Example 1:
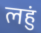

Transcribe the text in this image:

लहुं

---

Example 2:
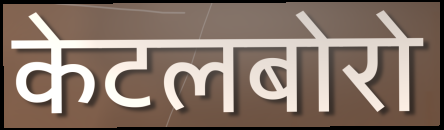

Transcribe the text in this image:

केटलबोरो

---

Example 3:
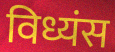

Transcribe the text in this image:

विध्यंस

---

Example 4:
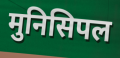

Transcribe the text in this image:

मुनिसिपल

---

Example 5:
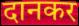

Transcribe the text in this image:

दानकर